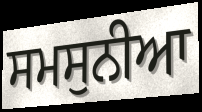
ਸਮਸੁਨੀਆ